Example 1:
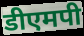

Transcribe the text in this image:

डीएमपी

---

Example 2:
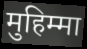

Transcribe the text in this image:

मुहिम्मा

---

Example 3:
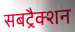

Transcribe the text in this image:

सबट्रैक्शन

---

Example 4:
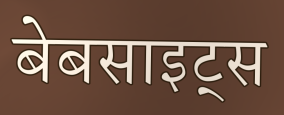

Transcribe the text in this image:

बेबसाइट्स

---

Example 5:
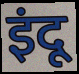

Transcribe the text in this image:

इंदू